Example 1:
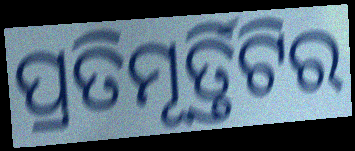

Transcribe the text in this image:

ପ୍ରତିମୂର୍ତ୍ତିଟିର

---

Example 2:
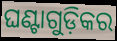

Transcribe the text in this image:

ଘଣ୍ଟାଗୁଡ଼ିକର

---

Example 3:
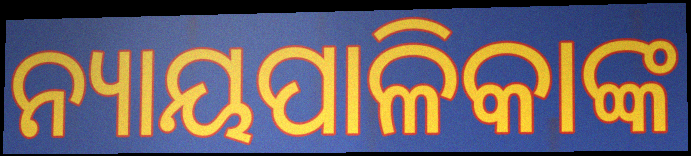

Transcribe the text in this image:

ନ୍ୟାୟପାଳିକାଙ୍କ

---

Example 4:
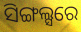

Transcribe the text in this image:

ସିଙ୍ଗଲ୍ସରେ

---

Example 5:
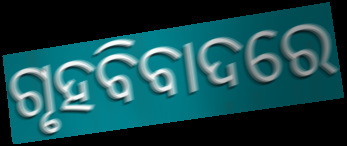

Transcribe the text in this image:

ଗୃହବିବାଦରେ